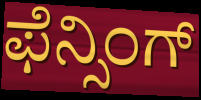
ಫೆನ್ಸಿಂಗ್